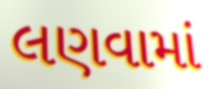
લણવામાં